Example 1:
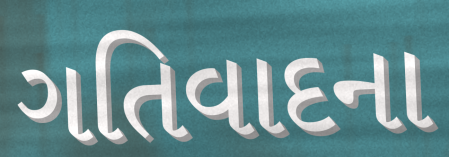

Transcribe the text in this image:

ગતિવાદના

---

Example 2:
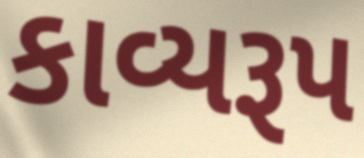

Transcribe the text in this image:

કાવ્યરૂપ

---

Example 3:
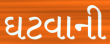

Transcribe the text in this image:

ઘટવાની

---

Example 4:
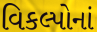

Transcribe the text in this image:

વિકલ્પોનાં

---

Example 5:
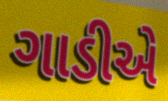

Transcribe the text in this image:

ગાડીએ